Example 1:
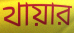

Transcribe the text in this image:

থায়ার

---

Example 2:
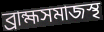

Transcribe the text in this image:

ব্রাহ্মসমাজস্থ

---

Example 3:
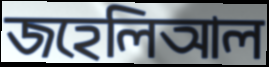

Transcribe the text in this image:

জহেলিআল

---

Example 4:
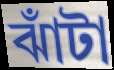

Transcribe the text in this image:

ঝাঁটা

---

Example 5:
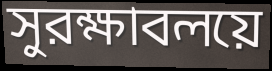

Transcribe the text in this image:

সুরক্ষাবলয়ে